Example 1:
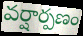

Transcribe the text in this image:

వర్షార్పణం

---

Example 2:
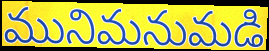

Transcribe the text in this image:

మునిమనుమడి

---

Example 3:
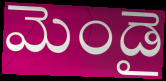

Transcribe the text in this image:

మెండై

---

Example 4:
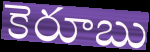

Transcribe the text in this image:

కెరూబు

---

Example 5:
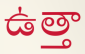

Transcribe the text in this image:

ఉత్తా